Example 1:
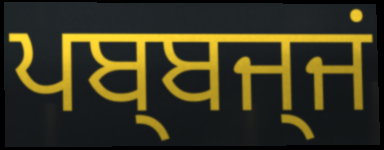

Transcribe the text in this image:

ਪਬ੍ਬਜ੍ਜਂ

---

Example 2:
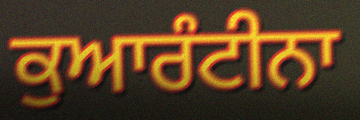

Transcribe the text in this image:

ਕੁਆਰੰਟੀਨਾ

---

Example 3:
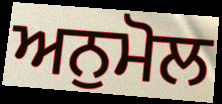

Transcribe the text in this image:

ਅਨੁਮੋਲ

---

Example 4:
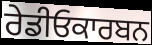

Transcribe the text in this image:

ਰੇਡੀਓਕਾਰਬਨ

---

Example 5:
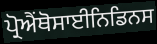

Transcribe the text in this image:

ਪ੍ਰੋਐਂਥੋਸਾਈਨਿਡਿਨਸ